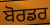
ਬੋਰਡਰ